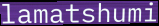
lamatshumi